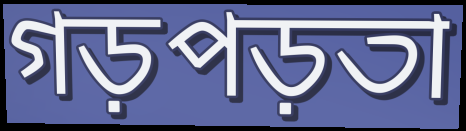
গড়পড়তা